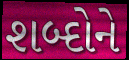
શબ્દોને